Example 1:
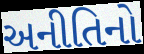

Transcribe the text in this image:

અનીતિનો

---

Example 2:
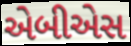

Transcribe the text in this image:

એબીએસ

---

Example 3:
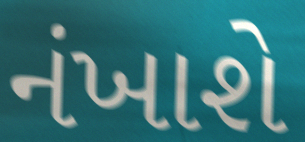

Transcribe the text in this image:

નંખાશે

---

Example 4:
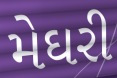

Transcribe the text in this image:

મેઘરી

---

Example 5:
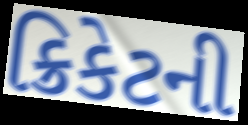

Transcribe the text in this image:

ક્રિકેટની